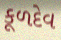
કૂળદેવ